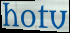
hotu